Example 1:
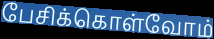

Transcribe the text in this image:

பேசிக்கொள்வோம்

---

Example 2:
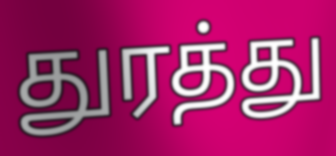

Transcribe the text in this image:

துரத்து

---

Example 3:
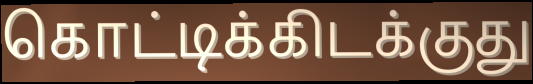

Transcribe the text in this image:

கொட்டிக்கிடக்குது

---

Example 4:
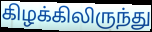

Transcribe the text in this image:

கிழக்கிலிருந்து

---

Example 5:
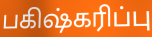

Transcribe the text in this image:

பகிஷ்கரிப்பு